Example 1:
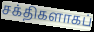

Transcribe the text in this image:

சக்திகளாகப்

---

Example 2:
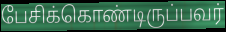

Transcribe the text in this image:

பேசிக்கொண்டிருப்பவர்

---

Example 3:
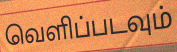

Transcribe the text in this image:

வெளிப்படவும்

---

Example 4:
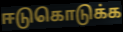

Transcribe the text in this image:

ஈடுகொடுக்க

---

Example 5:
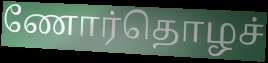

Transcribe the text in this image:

ணோர்தொழச்